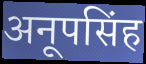
अनूपसिंह